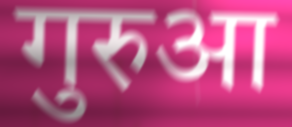
गुरुआ